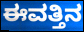
ಈವತ್ತಿನ